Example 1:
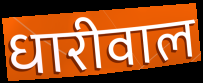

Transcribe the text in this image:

धारीवाल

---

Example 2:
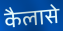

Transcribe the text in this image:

कैलासे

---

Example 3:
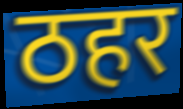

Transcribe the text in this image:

ठहर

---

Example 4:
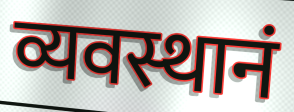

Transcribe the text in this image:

व्यवस्थानं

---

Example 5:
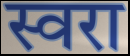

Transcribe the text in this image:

स्वरा